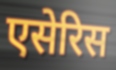
एसेरिस